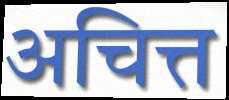
अचित्त